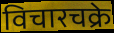
विचारचक्रे